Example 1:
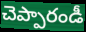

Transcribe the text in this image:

చెప్పారండీ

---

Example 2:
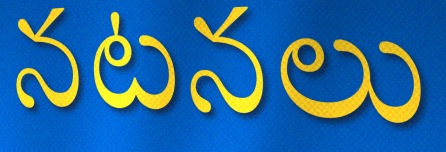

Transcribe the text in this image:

నటనలు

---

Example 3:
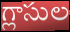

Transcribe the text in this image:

గ్లాసుల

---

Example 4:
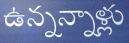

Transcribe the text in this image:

ఉన్నన్నాళ్లు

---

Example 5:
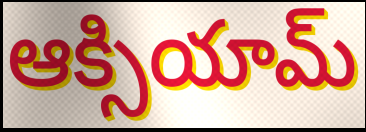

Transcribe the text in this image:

ఆక్సియామ్